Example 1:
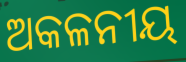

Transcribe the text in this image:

ଅକଳନୀୟ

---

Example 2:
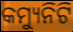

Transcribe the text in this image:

କମ୍ୟୁନିଟି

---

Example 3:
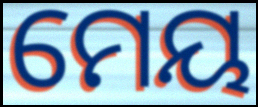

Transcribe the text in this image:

ମେୟ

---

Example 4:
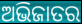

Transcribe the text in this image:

ଅଭିଜାତର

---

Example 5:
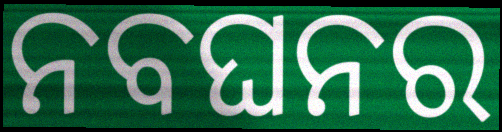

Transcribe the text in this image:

ନବଘନର